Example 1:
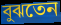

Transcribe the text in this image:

বুঝতেন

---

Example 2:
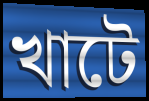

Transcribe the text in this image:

খাটে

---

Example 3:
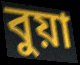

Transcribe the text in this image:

বুয়া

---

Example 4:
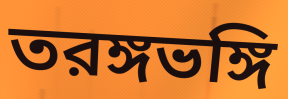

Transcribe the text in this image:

তরঙ্গভঙ্গি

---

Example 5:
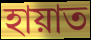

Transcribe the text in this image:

হায়াত